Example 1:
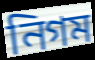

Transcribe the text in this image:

নিগম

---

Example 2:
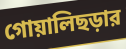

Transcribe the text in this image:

গোয়ালিছড়ার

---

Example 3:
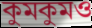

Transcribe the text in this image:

কুমকুমও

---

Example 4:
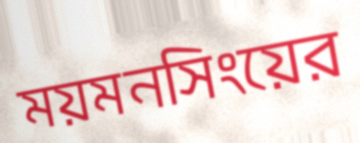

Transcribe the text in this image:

ময়মনসিংয়ের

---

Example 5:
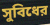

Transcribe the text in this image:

সুবিধের